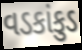
વડકાંકુડ